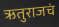
ऋतुराजचं